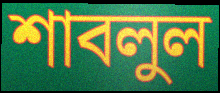
শাবলুল